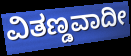
ವಿತಣ್ಡವಾದೀ